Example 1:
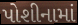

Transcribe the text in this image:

પોશીનામાં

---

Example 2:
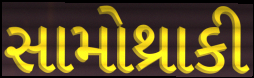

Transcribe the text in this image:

સામોથ્રાકી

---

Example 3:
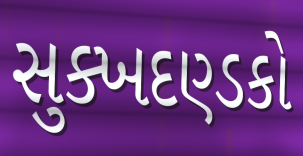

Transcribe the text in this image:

સુક્ખદણ્ડકો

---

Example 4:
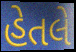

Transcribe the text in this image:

હેતલે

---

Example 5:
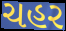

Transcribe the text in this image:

ચહર